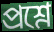
প্ৰশ্নে